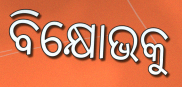
ବିକ୍ଷୋଭକୁ